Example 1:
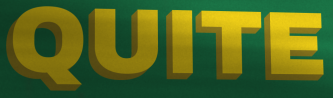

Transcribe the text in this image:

QUITE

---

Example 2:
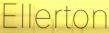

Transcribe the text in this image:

Ellerton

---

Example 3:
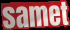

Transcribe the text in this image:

samet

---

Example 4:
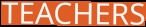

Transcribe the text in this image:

TEACHERS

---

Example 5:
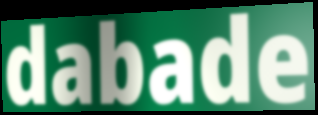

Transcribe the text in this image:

dabade